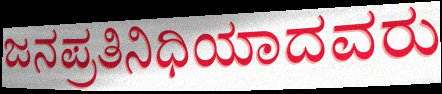
ಜನಪ್ರತಿನಿಧಿಯಾದವರು